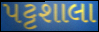
પટ્ટશાલા